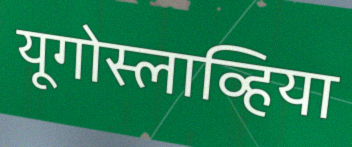
यूगोस्लाव्हिया